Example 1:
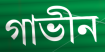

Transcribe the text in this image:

গাভীন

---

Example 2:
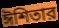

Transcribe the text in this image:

ঈশিতার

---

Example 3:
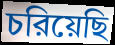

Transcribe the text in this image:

চরিয়েছি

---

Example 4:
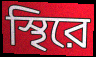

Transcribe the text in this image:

স্থিরে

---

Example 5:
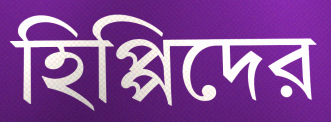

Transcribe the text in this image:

হিপ্পিদের